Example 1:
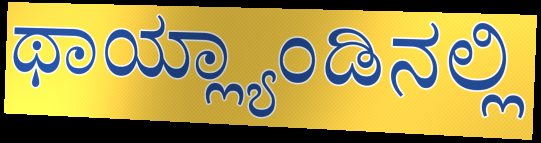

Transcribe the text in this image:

ಥಾಯ್ಲ್ಯಾಂಡಿನಲ್ಲಿ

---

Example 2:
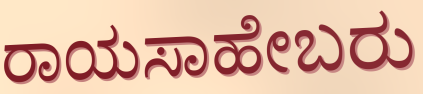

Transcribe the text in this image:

ರಾಯಸಾಹೇಬರು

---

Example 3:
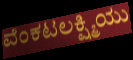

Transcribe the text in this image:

ವೆಂಕಟಲಕ್ಷ್ಮಿಯು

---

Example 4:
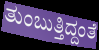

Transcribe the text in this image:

ತುಂಬುತ್ತಿದ್ದಂತೆ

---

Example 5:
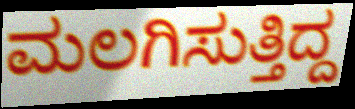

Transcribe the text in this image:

ಮಲಗಿಸುತ್ತಿದ್ದ